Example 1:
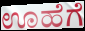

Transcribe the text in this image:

ಊಹೆಗೆ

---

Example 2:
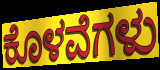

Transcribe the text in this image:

ಕೊಳವೆಗಳು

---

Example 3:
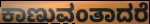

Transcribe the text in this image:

ಕಾಣುವಂತಾದರೆ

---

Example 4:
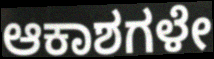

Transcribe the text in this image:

ಆಕಾಶಗಳೇ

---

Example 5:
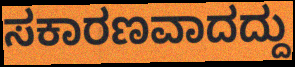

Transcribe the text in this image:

ಸಕಾರಣವಾದದ್ದು